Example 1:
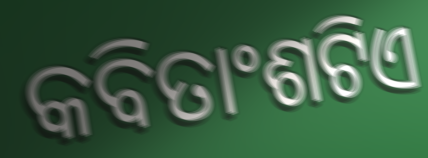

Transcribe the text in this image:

କବିତାଂଶଟିଏ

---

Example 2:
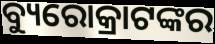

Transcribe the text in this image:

ବ୍ୟୁରୋକ୍ରାଟଙ୍କର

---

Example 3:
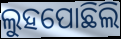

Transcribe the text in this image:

ଲୁହପୋଛିଲି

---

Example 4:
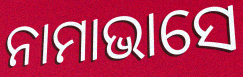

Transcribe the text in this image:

ନାମାଭାସେ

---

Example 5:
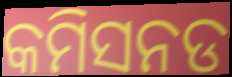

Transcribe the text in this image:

କମିସନଡ